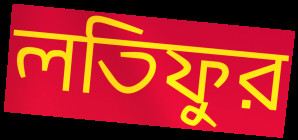
লতিফুর